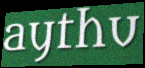
aythu